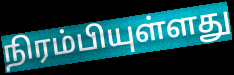
நிரம்பியுள்ளது